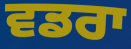
ਵਡਰਾ